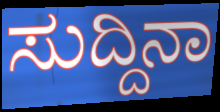
ಸುದ್ದಿನಾ